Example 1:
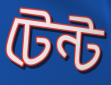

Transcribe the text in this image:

টেন্ট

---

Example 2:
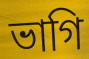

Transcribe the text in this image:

ভাগি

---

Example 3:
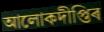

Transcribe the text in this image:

আলোকদীপ্তিৰ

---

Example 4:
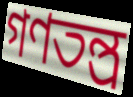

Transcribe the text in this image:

গণতন্ত্ৰ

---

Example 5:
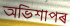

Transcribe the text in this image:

অভিশাপৰ